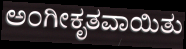
ಅಂಗೀಕೃತವಾಯಿತು